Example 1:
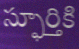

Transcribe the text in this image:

స్ఫూర్తికి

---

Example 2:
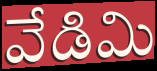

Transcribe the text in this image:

వేడిమి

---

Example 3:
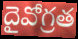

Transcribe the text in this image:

దైవోగ్రత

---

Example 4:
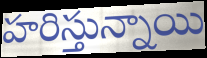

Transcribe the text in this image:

హరిస్తున్నాయి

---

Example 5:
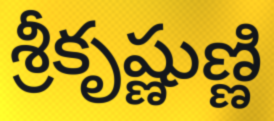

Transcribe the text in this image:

శ్రీకృష్ణుణ్ణి